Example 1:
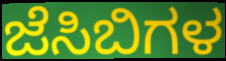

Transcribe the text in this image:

ಜೆಸಿಬಿಗಳ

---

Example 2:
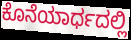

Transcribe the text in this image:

ಕೊನೆಯಾರ್ಧದಲ್ಲಿ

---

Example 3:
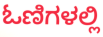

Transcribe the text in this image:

ಓಣಿಗಳಲ್ಲಿ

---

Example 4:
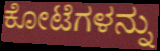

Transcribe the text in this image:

ಕೋಟೆಗಳನ್ನು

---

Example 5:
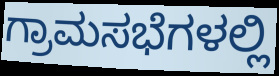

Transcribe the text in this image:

ಗ್ರಾಮಸಭೆಗಳಲ್ಲಿ